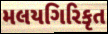
મલયગિરિકૃત